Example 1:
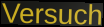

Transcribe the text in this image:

Versuch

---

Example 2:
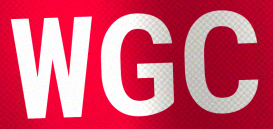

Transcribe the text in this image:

WGC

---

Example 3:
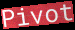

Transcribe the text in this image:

Pivot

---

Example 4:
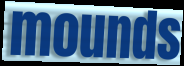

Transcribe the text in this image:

mounds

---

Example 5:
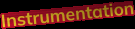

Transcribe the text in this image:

Instrumentation